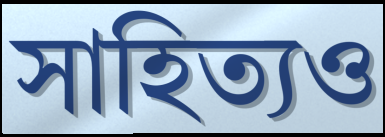
সাহিত্য়ও